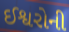
ઈશ્વરોની